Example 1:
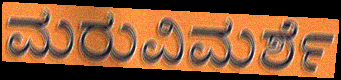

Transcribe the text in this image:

ಮರುವಿಮರ್ಶೆ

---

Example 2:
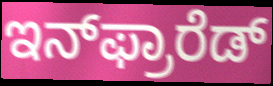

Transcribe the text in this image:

ಇನ್‌ಫ್ರಾರೆಡ್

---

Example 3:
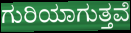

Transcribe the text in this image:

ಗುರಿಯಾಗುತ್ತವೆ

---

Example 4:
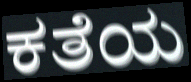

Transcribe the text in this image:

ಕತೆಯ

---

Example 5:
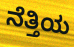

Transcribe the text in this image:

ನೆತ್ತಿಯ